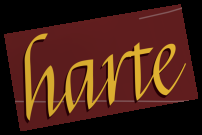
harte